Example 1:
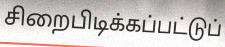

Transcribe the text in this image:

சிறைபிடிக்கப்பட்டுப்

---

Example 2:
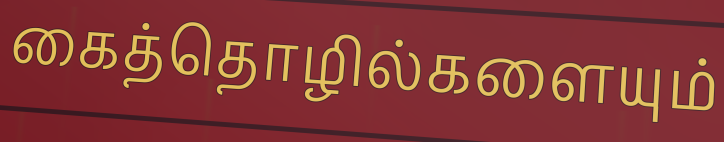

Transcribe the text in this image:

கைத்தொழில்களையும்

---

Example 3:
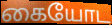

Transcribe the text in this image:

கையோட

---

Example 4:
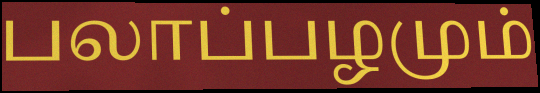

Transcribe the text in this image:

பலாப்பழமும்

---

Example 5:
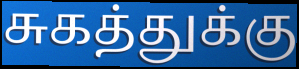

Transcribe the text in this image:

சுகத்துக்கு